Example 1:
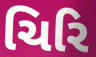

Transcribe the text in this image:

ચિરિ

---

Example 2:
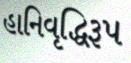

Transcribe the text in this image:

હાનિવૃદ્ધિરૂપ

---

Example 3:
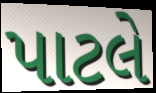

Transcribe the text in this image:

પાટલે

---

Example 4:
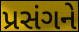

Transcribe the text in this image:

પ્રસંગને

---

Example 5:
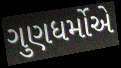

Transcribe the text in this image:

ગુણધર્મોએ